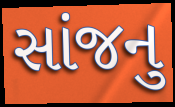
સાંજનુ